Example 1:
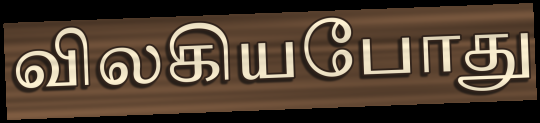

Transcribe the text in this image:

விலகியபோது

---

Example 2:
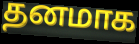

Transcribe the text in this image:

தனமாக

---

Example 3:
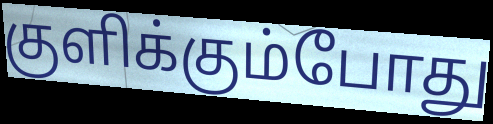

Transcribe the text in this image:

குளிக்கும்போது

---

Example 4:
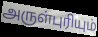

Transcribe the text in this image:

அருள்புரியும்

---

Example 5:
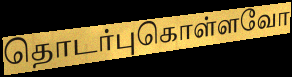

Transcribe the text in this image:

தொடர்புகொள்ளவோ